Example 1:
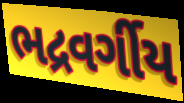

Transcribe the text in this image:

ભદ્રવર્ગીય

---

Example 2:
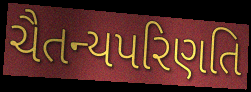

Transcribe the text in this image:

ચૈતન્યપરિણતિ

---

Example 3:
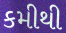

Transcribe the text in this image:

કમીથી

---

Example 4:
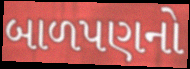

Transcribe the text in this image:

બાળપણનો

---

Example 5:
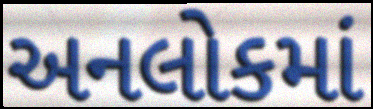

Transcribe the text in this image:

અનલોકમાં